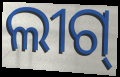
ଲୀଗ୍